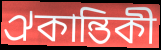
ঐকান্তিকী